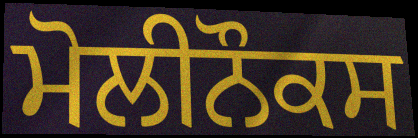
ਮੋਲੀਨੌਕਸ